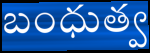
బంధుత్వ